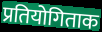
प्रतियोगिताक